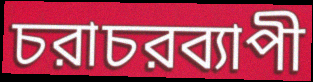
চরাচরব্যাপী